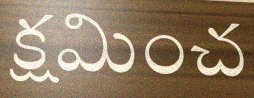
క్షమించ